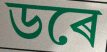
ডৰে